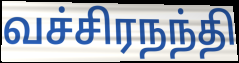
வச்சிரநந்தி